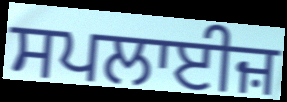
ਸਪਲਾਈਜ਼